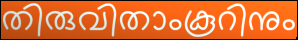
തിരുവിതാംകൂറിനും